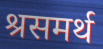
श्रसमर्थ